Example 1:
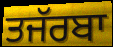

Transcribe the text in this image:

ਤਜੱਰਬਾ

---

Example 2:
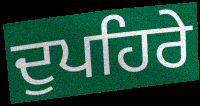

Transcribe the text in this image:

ਦੁਪਹਿਰੇ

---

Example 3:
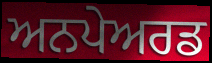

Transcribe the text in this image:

ਅਨਪੇਅਰਡ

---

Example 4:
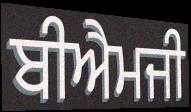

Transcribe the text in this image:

ਬੀਐਮਜੀ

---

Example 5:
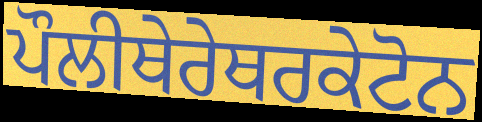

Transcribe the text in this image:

ਪੌਲੀਥੇਰੇਥਰਕੇਟੋਨ